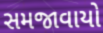
સમજાવાયો